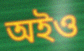
অইও